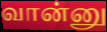
வான்னு